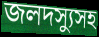
জলদস্যুসহ